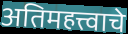
अतिमहत्त्वाचे